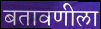
बतावणीला